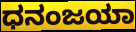
ಧನಂಜಯಾ